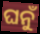
ଘନୁଁ